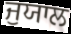
ਜੁਯਾਲ